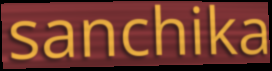
sanchika